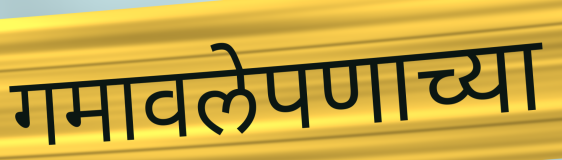
गमावलेपणाच्या